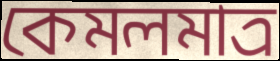
কেমলমাত্র